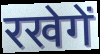
रखेगें